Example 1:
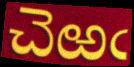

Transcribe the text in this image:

చెఱఁ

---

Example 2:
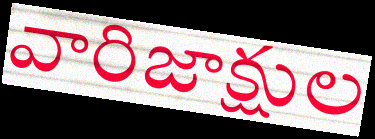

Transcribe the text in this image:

వారిజాక్షుల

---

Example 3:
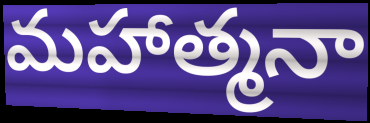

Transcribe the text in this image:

మహాత్మనా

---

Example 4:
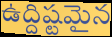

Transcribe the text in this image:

ఉద్దిష్టమైన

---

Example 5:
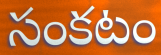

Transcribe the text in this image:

సంకటం